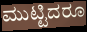
ಮುಟ್ಟಿದರೂ